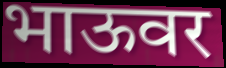
भाऊवर